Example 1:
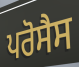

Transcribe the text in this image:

ਪਰੋਸੈਸ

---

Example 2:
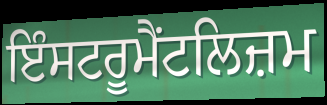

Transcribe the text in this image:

ਇੰਸਟਰੂਮੈਂਟਲਿਜ਼ਮ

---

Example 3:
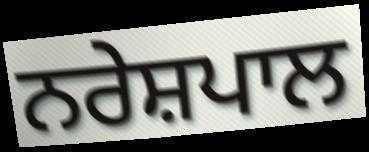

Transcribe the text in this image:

ਨਰੇਸ਼ਪਾਲ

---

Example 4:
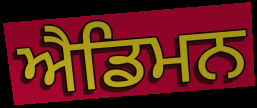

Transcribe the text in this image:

ਐਡਿਮਨ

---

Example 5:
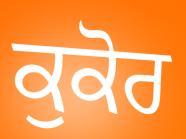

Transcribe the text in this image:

ਕੁਕੋਰ